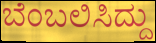
ಬೆಂಬಲಿಸಿದ್ದು